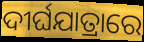
ଦୀର୍ଘଯାତ୍ରାରେ